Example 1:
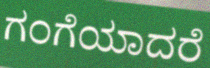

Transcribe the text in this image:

ಗಂಗೆಯಾದರೆ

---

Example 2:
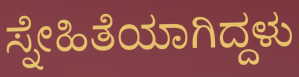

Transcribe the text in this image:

ಸ್ನೇಹಿತೆಯಾಗಿದ್ದಳು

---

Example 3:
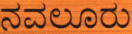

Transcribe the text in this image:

ನವಲೂರು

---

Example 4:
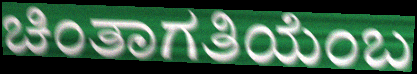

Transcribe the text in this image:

ಚಿಂತಾಗತಿಯೆಂಬ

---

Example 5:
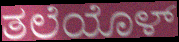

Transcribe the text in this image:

ತಲೆಯೊಳ್